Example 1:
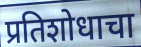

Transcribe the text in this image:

प्रतिशोधाचा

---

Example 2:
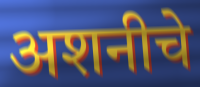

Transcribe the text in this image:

अशनीचे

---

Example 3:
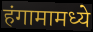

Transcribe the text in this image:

हंगामामध्ये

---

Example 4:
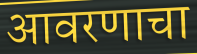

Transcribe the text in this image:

आवरणाचा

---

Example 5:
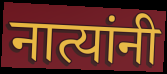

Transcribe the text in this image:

नात्यांनी